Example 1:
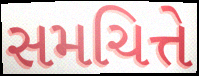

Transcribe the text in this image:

સમચિત્તે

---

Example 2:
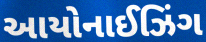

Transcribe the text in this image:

આયોનાઈઝિંગ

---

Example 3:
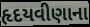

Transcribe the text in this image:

હૃદયવીણાના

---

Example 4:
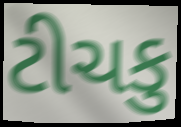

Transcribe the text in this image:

ટીચકુ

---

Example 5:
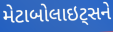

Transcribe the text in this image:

મેટાબોલાઇટ્સને